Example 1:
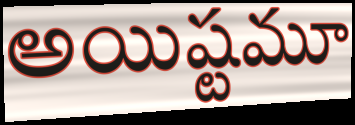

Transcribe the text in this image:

అయిష్టమూ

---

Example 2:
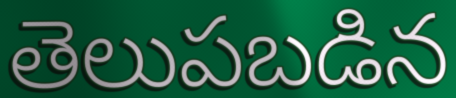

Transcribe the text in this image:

తెలుపబడిన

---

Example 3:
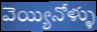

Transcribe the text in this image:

వెయ్యినోళ్ళు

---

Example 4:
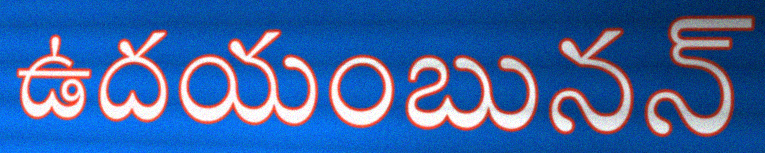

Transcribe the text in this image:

ఉదయంబునన్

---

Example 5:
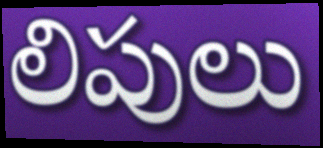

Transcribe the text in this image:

లిపులు